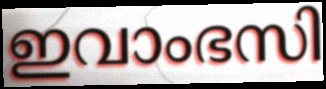
ഇവാംഭസി